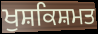
ਖੁਸ਼ਕਿਸ਼ਮਤ